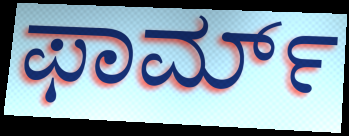
ಫಾರ್ಮ್